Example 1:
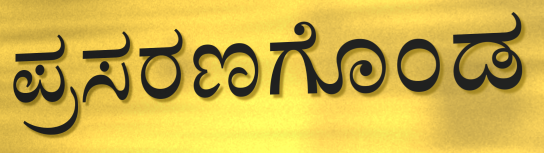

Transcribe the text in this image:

ಪ್ರಸರಣಗೊಂಡ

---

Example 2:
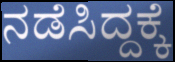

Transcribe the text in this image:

ನಡೆಸಿದ್ದಕ್ಕೆ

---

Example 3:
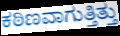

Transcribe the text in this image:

ಕಠಿಣವಾಗುತ್ತಿತ್ತು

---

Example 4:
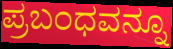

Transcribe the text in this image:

ಪ್ರಬಂಧವನ್ನೂ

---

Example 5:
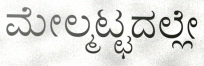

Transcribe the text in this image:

ಮೇಲ್ಮಟ್ಟದಲ್ಲೇ